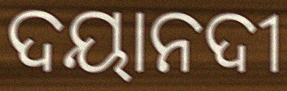
ଦୟାନଦୀ